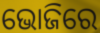
ଭୋଜିରେ